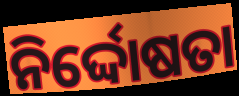
ନିର୍ଦ୍ଦୋଷତା